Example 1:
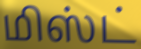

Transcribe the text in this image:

மிஸ்ட்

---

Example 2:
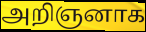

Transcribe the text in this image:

அறிஞனாக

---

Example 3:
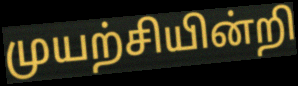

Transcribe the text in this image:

முயற்சியின்றி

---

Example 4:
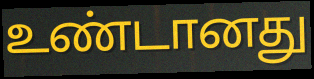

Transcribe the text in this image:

உண்டானது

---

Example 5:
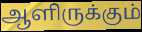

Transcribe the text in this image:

ஆளிருக்கும்